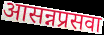
आसन्नप्रसवा